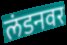
लंडनवर